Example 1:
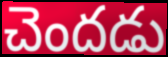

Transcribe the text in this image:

చెందడు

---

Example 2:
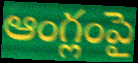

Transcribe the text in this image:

ఆంగ్లంపై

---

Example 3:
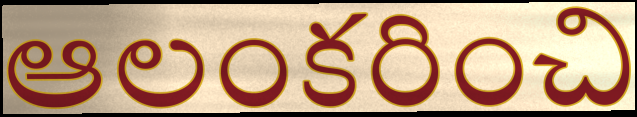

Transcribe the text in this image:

ఆలంకరించి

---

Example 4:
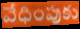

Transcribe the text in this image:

వేధింపుకు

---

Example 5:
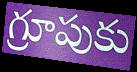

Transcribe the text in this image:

గ్రూపుకు